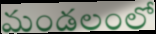
మండలంలో